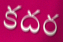
కదర